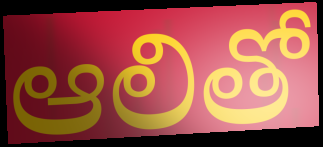
ఆలితో